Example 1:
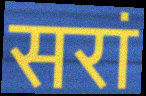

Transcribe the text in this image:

सरां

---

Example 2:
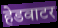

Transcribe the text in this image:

हेडवाटर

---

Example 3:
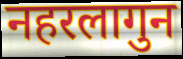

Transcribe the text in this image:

नहरलागुन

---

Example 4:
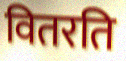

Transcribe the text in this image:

वितरति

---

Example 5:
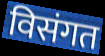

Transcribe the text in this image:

विसंगत